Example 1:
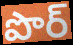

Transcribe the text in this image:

పొర్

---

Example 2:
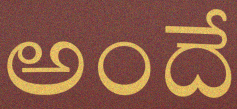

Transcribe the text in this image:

అందే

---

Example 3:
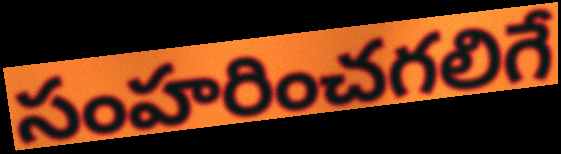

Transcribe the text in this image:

సంహరించగలిగే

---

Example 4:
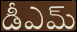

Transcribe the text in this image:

డీఎమ్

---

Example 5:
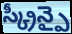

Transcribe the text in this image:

స్క్రీన్పై